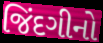
જિંદગીનો